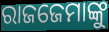
ରାଜଜେମାଙ୍କୁ